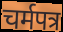
चर्मपत्र